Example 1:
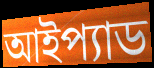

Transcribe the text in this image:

আইপ্যাড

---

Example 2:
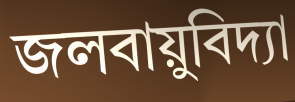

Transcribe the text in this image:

জলবায়ুবিদ্যা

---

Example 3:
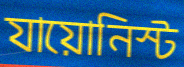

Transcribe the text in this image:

যায়োনিস্ট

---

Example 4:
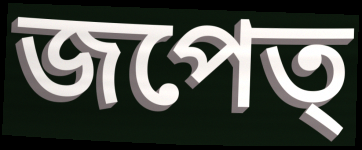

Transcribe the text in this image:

জপেত্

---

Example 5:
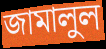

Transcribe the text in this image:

জামালুল